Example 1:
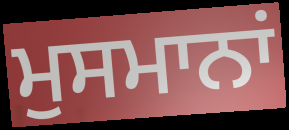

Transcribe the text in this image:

ਮੁਸਮਾਨਾਂ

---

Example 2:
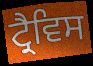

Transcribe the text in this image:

ਟ੍ਰੈਵਿਸ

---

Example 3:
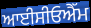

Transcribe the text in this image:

ਆਈਸੀਓਐੱਮ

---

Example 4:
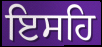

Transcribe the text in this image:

ਇਸਹਿ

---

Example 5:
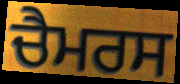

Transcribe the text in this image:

ਚੈਮਰਸ